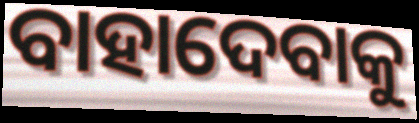
ବାହାଦେବାକୁ